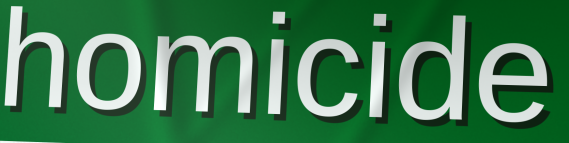
homicide